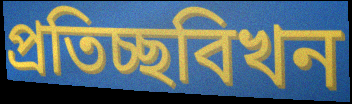
প্ৰতিচ্ছবিখন